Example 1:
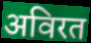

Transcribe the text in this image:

अविरत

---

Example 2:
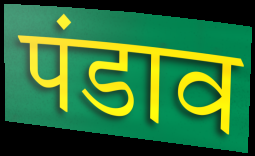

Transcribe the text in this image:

पंडाव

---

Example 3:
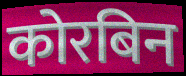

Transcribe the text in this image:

कोरबिन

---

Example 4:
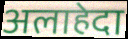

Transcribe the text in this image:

अलाहेदा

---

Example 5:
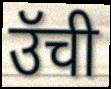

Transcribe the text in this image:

उॅची